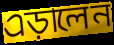
এড়ালেন